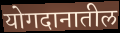
योगदानातील